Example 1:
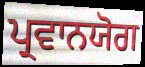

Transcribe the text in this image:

ਪ੍ਰਵਾਨਯੋਗ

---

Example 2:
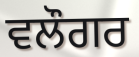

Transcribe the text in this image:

ਵਲੌਗਰ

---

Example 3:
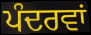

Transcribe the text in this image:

ਪੰਦਰਵਾਂ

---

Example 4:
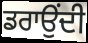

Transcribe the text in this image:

ਡਰਾਉਂਦੀ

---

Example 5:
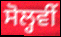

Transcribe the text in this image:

ਸੋਲ੍ਹਵੀਂ